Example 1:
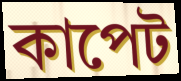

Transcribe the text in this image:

কাপেট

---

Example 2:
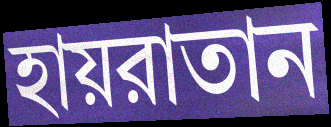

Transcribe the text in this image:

হায়রাতান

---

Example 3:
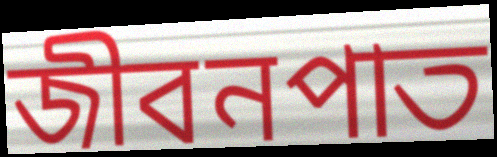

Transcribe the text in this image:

জীবনপাত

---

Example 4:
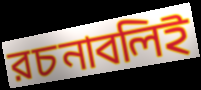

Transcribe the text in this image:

রচনাবলিই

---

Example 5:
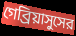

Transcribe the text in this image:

গেব্রিয়াসুসের